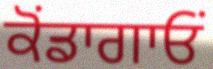
ਕੋਂਡਾਗਾਓਂ